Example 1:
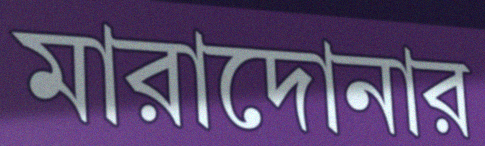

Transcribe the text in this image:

মারাদোনার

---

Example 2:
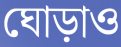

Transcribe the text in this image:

ঘোড়াও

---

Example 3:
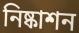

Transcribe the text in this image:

নিষ্কাশন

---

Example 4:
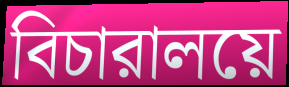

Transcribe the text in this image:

বিচারালয়ে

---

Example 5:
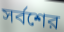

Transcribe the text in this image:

সর্বশের